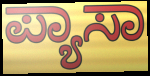
ಪ್ಯಾಸಾ